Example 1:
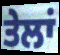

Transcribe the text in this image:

ਤੇਲਾਂ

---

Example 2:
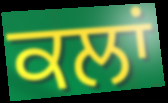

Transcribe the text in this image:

ਕਲਾਂ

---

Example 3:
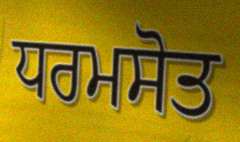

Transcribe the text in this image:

ਧਰਮਸੋਤ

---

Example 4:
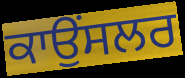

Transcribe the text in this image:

ਕਾਉਂਸਲਰ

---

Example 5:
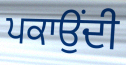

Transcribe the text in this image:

ਪਕਾਉਂਦੀ